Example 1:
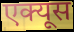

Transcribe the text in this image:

एक्यूस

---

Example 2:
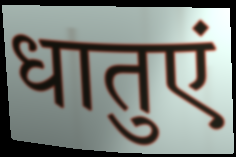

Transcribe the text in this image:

धातुएं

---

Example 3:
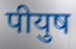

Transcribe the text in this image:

पीयुष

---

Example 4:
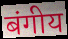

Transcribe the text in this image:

बंगीय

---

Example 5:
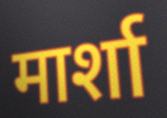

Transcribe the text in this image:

मार्शा